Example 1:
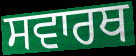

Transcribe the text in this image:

ਸਵਾਰਥ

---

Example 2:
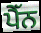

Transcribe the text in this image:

ਪੈੱਨ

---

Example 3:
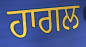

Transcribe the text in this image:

ਹਾਗਲ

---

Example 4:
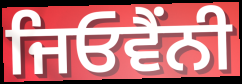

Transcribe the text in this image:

ਜਿਓਵੈਂਨੀ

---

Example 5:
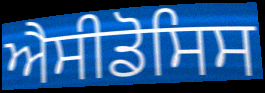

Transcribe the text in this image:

ਐਸੀਡੋਸਿਸ